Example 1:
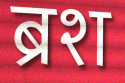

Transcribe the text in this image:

ब्रश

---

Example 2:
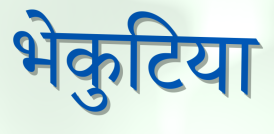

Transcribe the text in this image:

भेकुटिया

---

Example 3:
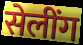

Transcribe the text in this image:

सेलींग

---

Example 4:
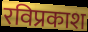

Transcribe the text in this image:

रविप्रकाश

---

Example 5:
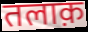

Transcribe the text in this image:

तलाक़